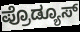
ಪ್ರೊಡ್ಯೂಸ್